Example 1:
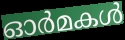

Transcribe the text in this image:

ഓർമകൾ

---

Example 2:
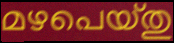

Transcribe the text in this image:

മഴപെയ്തു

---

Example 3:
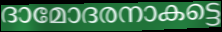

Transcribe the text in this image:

ദാമോദരനാകട്ടെ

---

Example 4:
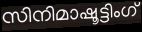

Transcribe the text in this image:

സിനിമാഷൂട്ടിംഗ്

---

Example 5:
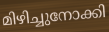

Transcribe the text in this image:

മിഴിച്ചുനോക്കി